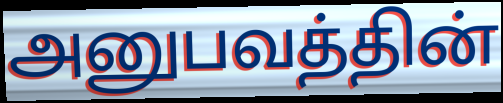
அனுபவத்தின்